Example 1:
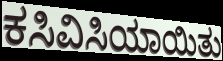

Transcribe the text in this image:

ಕಸಿವಿಸಿಯಾಯಿತು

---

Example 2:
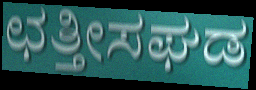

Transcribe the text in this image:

ಛತ್ತೀಸಘಡ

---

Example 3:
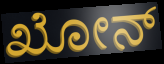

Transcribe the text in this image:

ಖೋನ್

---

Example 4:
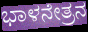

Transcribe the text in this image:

ಭಾಳನೇತ್ರನ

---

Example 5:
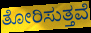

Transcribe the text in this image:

ತೋರಿಸುತ್ತವೆ